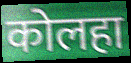
कोलहा